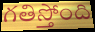
గతిస్తోంది